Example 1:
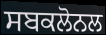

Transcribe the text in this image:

ਸਬਕਲੋਨਲ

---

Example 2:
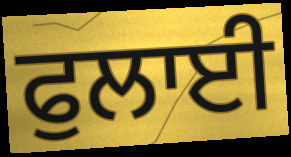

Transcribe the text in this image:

ਫੁਲਾਈ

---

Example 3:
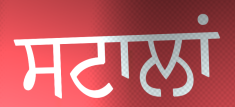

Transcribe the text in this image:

ਸਟਾਲਾਂ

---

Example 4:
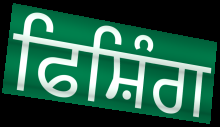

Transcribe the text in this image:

ਫਿਸ਼ਿੰਗ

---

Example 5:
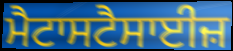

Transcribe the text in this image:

ਮੈਟਾਸਟੈਸਾਈਜ਼